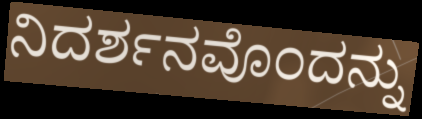
ನಿದರ್ಶನವೊಂದನ್ನು